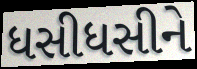
ધસીધસીને